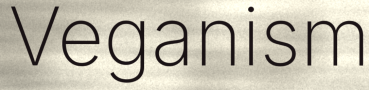
Veganism